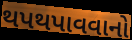
થપથપાવવાનો